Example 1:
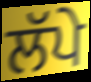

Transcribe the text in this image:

ਲੱਪੇ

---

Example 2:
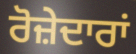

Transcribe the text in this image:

ਰੋਜ਼ੇਦਾਰਾਂ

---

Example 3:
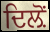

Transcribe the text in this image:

ਦਿਲ਼ੋਂ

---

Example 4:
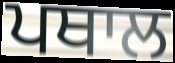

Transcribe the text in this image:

ਪਥਾਲ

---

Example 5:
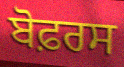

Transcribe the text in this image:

ਬੋਫ਼ਰਸ